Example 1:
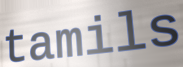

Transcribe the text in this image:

tamils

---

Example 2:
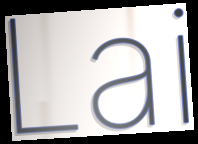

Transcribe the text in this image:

Lai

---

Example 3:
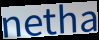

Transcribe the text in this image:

netha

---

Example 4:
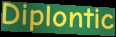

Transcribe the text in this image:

Diplontic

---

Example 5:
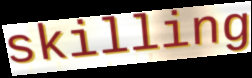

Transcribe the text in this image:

skilling